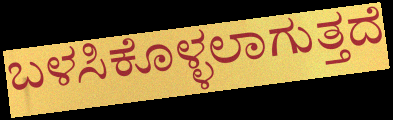
ಬಳಸಿಕೊಳ್ಳಲಾಗುತ್ತದೆ